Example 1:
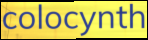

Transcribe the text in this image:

colocynth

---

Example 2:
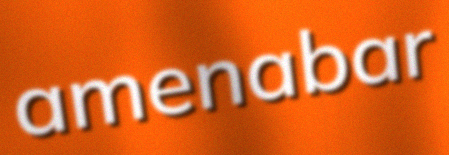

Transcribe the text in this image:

amenabar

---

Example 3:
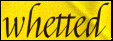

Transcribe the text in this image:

whetted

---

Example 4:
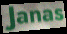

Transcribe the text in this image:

Janas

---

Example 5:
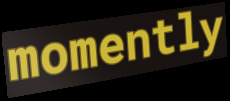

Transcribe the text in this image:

momently